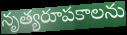
నృత్యరూపకాలను